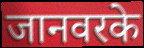
जानवरके